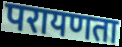
परायणता